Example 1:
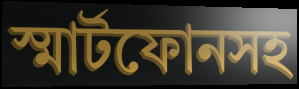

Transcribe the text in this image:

স্মার্টফোনসহ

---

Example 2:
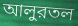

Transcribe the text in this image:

আলুরতল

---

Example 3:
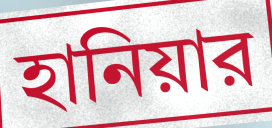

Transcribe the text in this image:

হানিয়ার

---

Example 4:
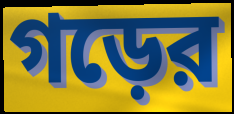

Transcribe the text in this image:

গড়ের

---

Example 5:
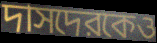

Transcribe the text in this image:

দাসদেরকেও